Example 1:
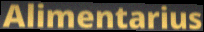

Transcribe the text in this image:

Alimentarius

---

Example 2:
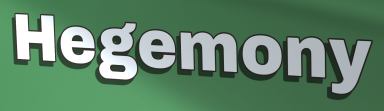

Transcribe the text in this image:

Hegemony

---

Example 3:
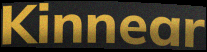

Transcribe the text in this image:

Kinnear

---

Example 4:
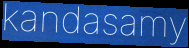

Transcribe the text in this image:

kandasamy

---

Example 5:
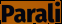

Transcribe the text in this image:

Parali